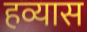
हव्यास